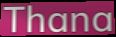
Thana